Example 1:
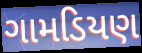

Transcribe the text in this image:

ગામડિયણ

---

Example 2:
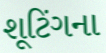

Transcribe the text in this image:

શૂટિંગના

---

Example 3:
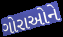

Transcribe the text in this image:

ગોરાઓને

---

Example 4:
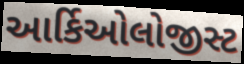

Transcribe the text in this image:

આર્કિઓલોજીસ્ટ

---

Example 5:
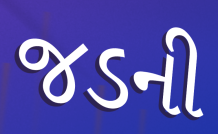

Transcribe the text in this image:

જડની